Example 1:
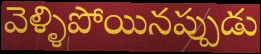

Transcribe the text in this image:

వెళ్ళిపోయినప్పుడు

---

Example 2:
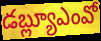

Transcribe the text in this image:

డబ్ల్యూఎంవో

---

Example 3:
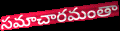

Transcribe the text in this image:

సమాచారమంతా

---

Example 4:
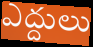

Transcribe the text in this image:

ఎద్దులు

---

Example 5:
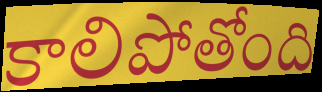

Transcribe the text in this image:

కాలిపోతోంది